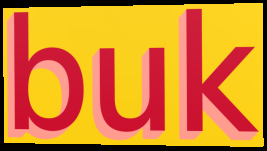
buk